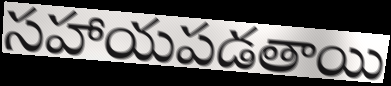
సహాయపడతాయి